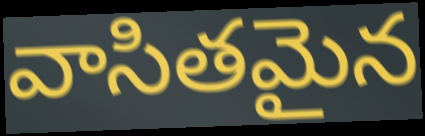
వాసితమైన